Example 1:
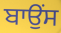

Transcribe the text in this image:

ਬਾਉਂਸ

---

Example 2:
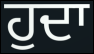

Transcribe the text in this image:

ਹੁਦਾ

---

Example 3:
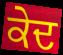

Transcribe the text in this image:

ਕੇਦ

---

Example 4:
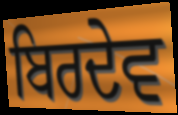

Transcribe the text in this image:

ਬਿਰਦੇਵ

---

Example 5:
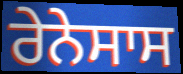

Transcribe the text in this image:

ਰੇਨੇਸਾਸ